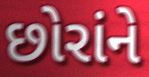
છોરાંને